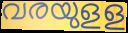
വരയുളള